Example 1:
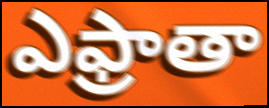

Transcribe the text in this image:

ఎఫ్రాతా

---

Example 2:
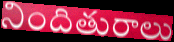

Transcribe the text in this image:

నిందితురాలు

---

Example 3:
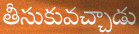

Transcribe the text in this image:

తీసుకువచ్చాడు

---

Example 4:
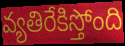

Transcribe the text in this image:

వ్యతిరేకిస్తోంది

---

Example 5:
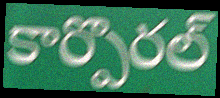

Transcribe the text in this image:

కార్పొరల్